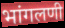
भांगलणी